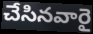
చేసినవారై